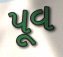
પૂવ